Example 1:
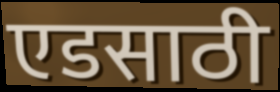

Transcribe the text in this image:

एडसाठी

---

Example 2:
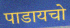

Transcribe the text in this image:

पाडायचो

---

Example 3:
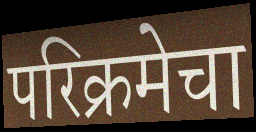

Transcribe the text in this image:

परिक्रमेचा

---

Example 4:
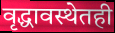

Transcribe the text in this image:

वृद्धावस्थेतही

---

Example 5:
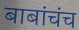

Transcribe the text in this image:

बाबांचंच